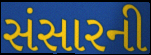
સંસારની